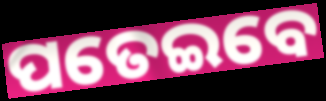
ପତେଇବେ